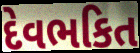
દેવભકિત